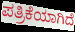
ಪತ್ರಿಕೆಯಾಗಿದೆ